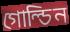
গোল্ডিন